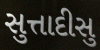
સુત્તાદીસુ